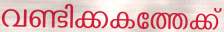
വണ്ടിക്കകത്തേക്ക്